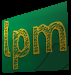
lpm